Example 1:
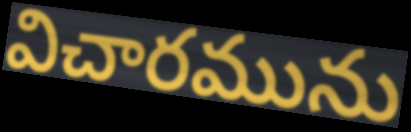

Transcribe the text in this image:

విచారమును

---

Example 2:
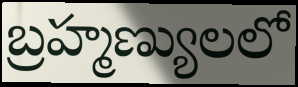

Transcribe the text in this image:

బ్రహ్మణ్యులలో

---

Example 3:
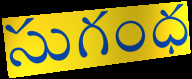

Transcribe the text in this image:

సుగంధ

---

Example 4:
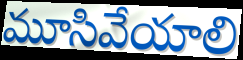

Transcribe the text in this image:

మూసివేయాలి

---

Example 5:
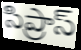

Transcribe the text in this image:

సిప్రాస్